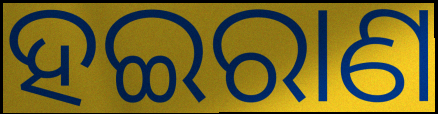
ହଇରାଣ